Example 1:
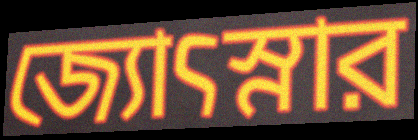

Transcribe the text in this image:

জ্যোৎস্নার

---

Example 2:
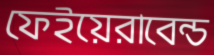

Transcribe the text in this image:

ফেইয়েরাবেন্ড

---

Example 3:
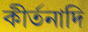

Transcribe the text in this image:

কীর্তনাদি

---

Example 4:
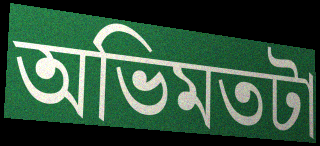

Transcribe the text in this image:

অভিমতটা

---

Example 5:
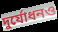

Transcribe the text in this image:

দুর্যোধনও